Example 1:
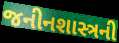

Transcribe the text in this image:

જનીનશાસ્ત્રની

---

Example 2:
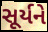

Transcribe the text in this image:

સૂર્યને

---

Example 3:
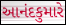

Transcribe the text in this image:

આનંદકુમારે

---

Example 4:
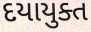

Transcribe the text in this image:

દયાયુક્ત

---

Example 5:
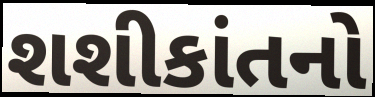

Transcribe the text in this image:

શશીકાંતનો